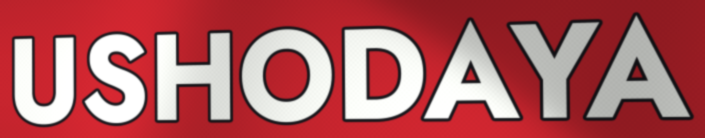
USHODAYA